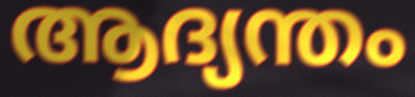
ആദ്യന്തം